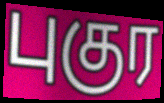
புகுர